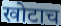
खोटाच